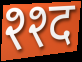
श्श्द